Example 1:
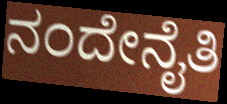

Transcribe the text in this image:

ನಂದೇನೈತಿ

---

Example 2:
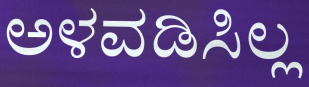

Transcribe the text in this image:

ಅಳವಡಿಸಿಲ್ಲ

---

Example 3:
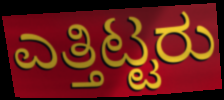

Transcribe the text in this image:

ಎತ್ತಿಟ್ಟರು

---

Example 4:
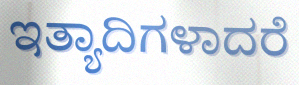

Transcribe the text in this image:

ಇತ್ಯಾದಿಗಳಾದರೆ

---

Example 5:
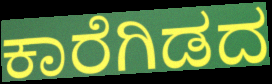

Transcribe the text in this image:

ಕಾರೆಗಿಡದ